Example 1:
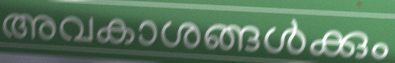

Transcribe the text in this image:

അവകാശങ്ങൾക്കും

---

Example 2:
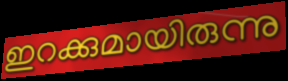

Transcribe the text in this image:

ഇറക്കുമായിരുന്നു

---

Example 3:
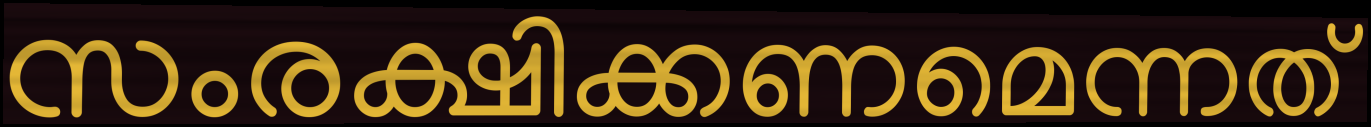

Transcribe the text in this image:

സംരക്ഷിക്കണമെന്നത്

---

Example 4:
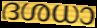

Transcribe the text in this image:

ദശധാ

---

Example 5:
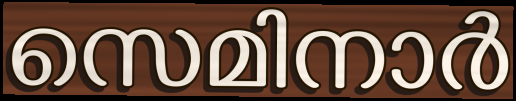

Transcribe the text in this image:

സെമിനാർ